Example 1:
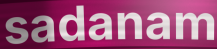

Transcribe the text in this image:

sadanam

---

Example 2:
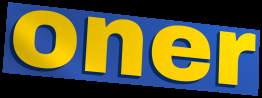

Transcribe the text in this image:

oner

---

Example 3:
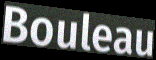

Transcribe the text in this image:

Bouleau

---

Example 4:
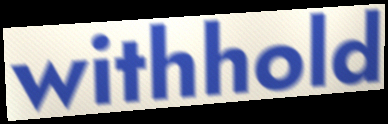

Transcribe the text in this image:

withhold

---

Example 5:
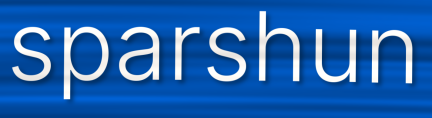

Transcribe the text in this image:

sparshun